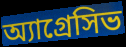
অ্যাগ্রেসিভ